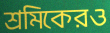
শ্রমিকেরও